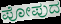
ಪೋಪುದ